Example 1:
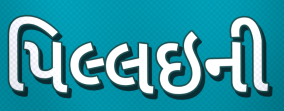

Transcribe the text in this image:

પિલ્લઇની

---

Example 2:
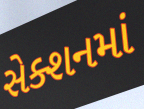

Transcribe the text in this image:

સેક્શનમાં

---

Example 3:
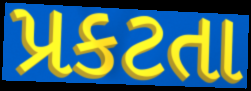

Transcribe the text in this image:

પ્રકટતા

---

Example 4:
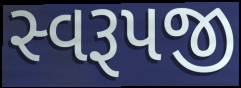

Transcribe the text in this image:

સ્વરૂપજી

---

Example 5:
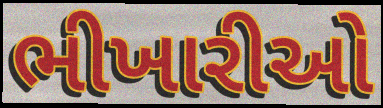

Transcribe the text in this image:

ભીખારીઓ